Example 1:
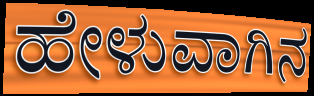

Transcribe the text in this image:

ಹೇಳುವಾಗಿನ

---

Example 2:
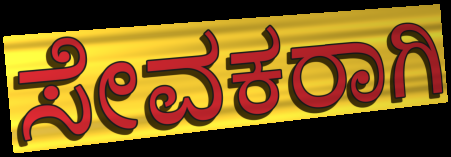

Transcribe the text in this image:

ಸೇವಕರಾಗಿ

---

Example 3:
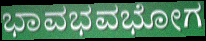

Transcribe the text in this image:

ಭಾವಭವಭೋಗ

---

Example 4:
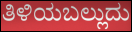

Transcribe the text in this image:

ತಿಳಿಯಬಲ್ಲುದು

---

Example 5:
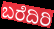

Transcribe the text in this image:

ಬರೆದಿರಿ